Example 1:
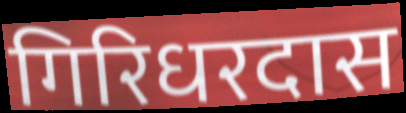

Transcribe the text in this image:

गिरिधरदास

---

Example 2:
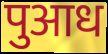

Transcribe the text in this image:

पुआध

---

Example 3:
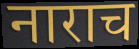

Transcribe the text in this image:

नाराच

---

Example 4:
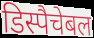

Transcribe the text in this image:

डिस्पैचेबल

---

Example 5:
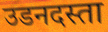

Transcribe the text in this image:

उडनदस्ता